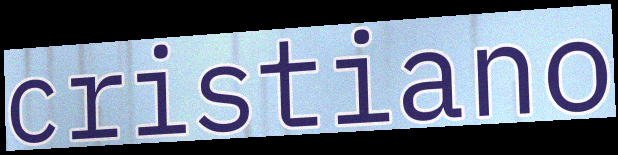
cristiano